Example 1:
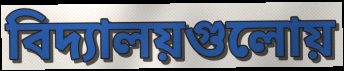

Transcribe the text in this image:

বিদ্যালয়গুলোয়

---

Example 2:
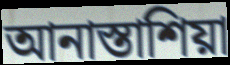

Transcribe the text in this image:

আনাস্তাশিয়া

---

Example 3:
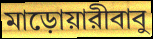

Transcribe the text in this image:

মাড়োয়ারীবাবু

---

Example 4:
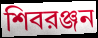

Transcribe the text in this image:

শিবরঞ্জন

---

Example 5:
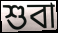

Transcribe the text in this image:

শুবা